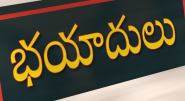
భయాదులు